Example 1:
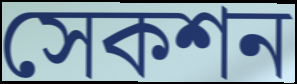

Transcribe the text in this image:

সেকশন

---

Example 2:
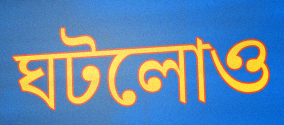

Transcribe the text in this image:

ঘটলোও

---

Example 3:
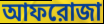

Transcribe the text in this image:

আফরোজা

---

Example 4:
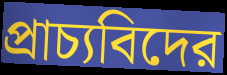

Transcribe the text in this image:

প্রাচ্যবিদের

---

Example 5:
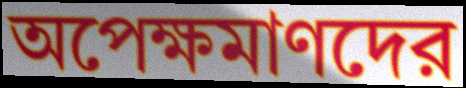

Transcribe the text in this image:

অপেক্ষমাণদের